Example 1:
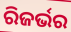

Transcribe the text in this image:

ରିଜର୍ଭର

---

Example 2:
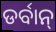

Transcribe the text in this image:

ଡର୍ବାନ୍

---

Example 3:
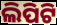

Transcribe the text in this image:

ଲିପିଟି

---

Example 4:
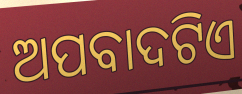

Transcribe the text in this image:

ଅପବାଦଟିଏ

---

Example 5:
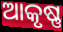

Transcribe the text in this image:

ଆକୃଷ୍ଣ